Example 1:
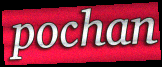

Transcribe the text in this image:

pochan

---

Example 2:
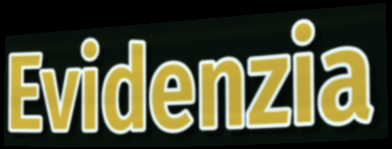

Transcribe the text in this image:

Evidenzia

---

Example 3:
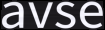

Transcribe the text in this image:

avse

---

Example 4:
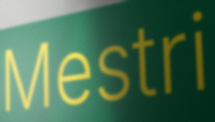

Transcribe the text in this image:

Mestri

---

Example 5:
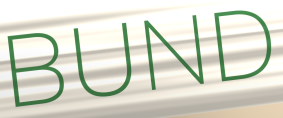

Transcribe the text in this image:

BUND